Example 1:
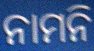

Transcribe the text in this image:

ନାମନି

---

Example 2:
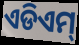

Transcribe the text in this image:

ଏଡିଏମ୍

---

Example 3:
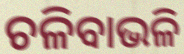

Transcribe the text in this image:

ଚଳିବାଭଳି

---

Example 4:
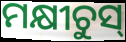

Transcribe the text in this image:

ମକ୍ଷୀଚୁସ୍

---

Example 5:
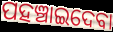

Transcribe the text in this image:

ପହଞ୍ଚାଇଦେବା